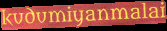
kudumiyanmalai